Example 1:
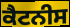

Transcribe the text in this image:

ਕੈਟਨੀਸ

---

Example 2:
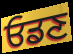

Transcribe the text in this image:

ਓਡਣ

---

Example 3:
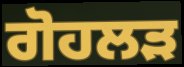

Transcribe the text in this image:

ਗੋਹਲੜ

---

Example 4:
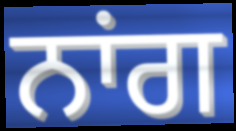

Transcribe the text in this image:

ਨਾਂਗ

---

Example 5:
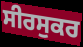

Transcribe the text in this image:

ਸੀਰਸੁਕਰ